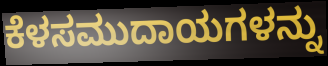
ಕೆಳಸಮುದಾಯಗಳನ್ನು